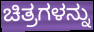
ಚಿತ್ರಗಳನ್ನು